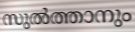
സുൽത്താനും